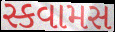
સ્કવામસ